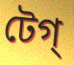
টেগ্